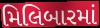
મિલિબારમાં